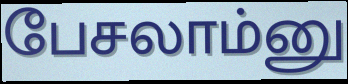
பேசலாம்னு